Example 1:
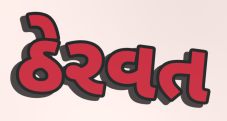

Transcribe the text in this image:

ઠેરવત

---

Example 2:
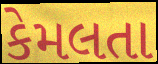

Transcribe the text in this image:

કેમલતા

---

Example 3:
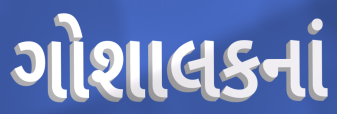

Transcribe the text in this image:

ગોશાલકનાં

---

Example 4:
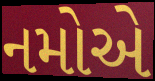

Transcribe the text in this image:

નમોએ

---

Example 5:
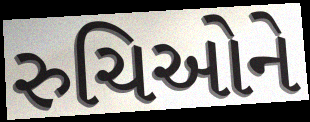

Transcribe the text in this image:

રુચિઓને